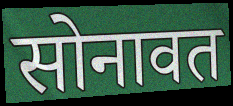
सोनावत